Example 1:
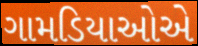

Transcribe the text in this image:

ગામડિયાઓએ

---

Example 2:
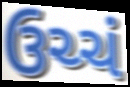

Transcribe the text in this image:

ઉચ્ચં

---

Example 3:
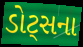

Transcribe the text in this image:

ડોટ્સના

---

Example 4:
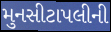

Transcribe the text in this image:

મુનસીટાપલીની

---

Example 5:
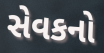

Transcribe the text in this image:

સેવકનો